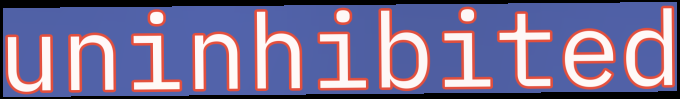
uninhibited